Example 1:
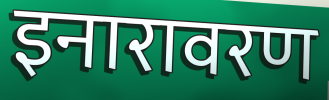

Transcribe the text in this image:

इनारावरण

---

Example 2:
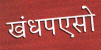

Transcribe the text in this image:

खंधपएसो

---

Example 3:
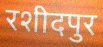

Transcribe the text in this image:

रशीदपुर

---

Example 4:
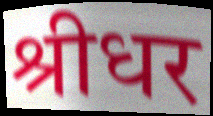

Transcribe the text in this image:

श्रीधर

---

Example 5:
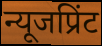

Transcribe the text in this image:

न्यूजप्रिंट